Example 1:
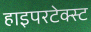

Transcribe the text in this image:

हाइपरटेक्स्ट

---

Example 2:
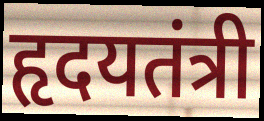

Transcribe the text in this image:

हृदयतंत्री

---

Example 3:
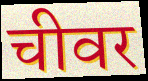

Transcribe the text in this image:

चीवर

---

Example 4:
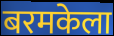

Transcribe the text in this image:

बरमकेला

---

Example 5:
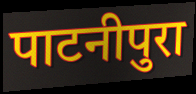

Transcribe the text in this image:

पाटनीपुरा